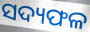
ସଦ୍ୟଫଳ